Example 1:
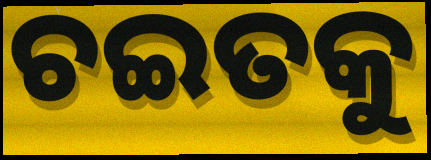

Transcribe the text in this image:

ଚଇତକୁ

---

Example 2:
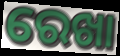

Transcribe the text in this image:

ରେଖା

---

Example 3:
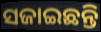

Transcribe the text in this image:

ସଜାଇଛନ୍ତି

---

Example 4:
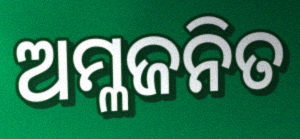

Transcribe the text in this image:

ଅମ୍ଳଜନିତ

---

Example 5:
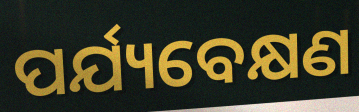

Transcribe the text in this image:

ପର୍ଯ୍ୟବେକ୍ଷଣ